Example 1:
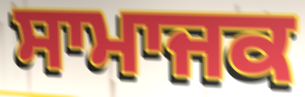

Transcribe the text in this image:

ਸਾਮਾਜਕ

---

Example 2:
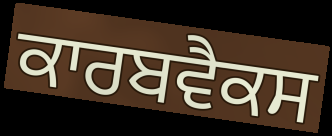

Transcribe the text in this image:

ਕਾਰਬਵੈਕਸ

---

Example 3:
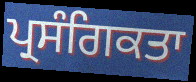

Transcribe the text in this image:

ਪ੍ਰਸੰਗਿਕਤਾ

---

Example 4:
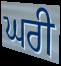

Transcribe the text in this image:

ਘਰੀ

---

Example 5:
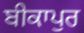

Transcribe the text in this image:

ਬੀਕਾਪੁਰ